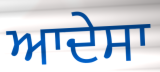
ਆਦੇਸਾ